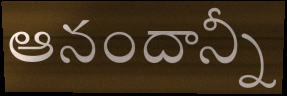
ఆనందాన్నీ